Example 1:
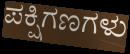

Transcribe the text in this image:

ಪಕ್ಷಿಗಣಗಳು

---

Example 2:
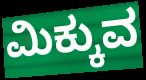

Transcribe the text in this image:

ಮಿಕ್ಕುವ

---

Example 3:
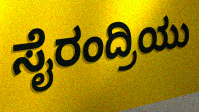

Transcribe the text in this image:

ಸೈರಂದ್ರಿಯು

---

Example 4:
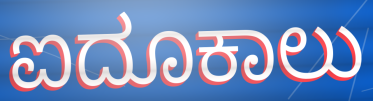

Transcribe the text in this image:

ಐದೂಕಾಲು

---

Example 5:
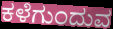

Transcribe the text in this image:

ಕಳೆಗುಂದುವ